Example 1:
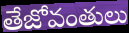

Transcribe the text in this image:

తేజోవంతులు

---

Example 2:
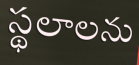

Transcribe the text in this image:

స్థలాలను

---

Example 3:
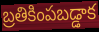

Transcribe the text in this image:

బ్రతికింపబడ్డాక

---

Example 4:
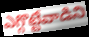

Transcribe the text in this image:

ఎగ్గొట్టేవాడిని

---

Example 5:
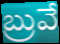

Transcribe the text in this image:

బ్రువే